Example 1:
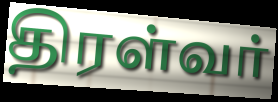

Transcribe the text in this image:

திரள்வர்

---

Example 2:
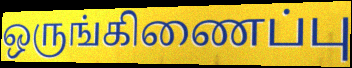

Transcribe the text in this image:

ஒருங்கிணைப்பு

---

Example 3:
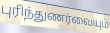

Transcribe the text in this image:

புரிந்துணர்வையும்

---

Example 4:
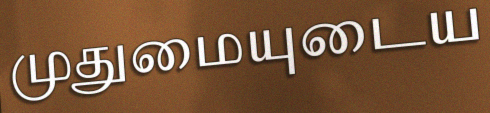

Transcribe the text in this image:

முதுமையுடைய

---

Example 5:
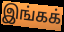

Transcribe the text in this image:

இங்கக்